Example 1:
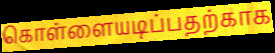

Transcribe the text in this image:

கொள்ளையடிப்பதற்காக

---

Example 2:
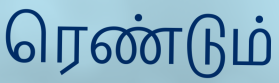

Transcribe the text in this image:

ரெண்டும்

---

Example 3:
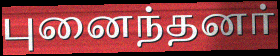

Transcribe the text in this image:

புனைந்தனர்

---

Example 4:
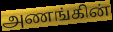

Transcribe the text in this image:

அணங்கின்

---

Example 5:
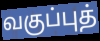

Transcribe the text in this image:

வகுப்புத்